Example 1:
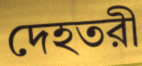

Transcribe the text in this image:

দেহতরী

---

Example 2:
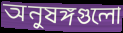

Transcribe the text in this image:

অনুষঙ্গগুলো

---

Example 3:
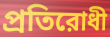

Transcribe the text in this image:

প্রতিরোধী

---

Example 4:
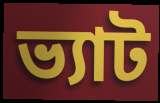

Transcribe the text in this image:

ভ্যাট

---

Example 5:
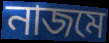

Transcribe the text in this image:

নাজমে